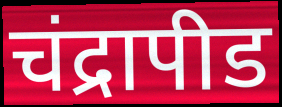
चंद्रापीड